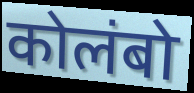
कोलंबो